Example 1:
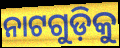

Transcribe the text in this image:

ନାଟଗୁଡ଼ିକୁ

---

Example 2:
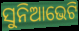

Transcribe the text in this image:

ସୁନିଆଭେଟି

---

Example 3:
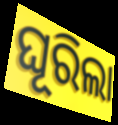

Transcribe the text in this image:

ଘୂରିଲା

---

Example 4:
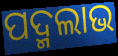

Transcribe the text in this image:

ପଦ୍ମଲାଭ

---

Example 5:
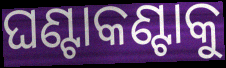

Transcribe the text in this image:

ଘଣ୍ଟାକଣ୍ଟାକୁ